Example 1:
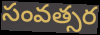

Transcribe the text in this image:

సంవత్సర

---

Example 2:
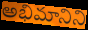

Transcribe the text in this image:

అభిమానిని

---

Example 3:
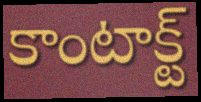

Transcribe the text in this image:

కాంటాక్ట్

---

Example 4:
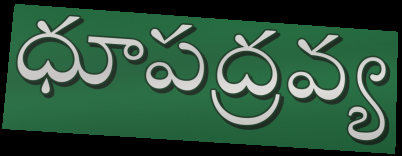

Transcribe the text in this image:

ధూపద్రవ్య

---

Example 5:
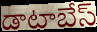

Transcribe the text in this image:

డాటాబేస్